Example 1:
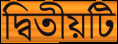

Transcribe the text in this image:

দ্বিতীয়টি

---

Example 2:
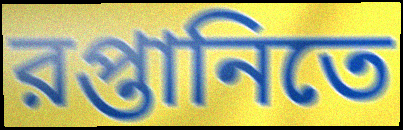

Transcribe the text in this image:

রপ্তানিতে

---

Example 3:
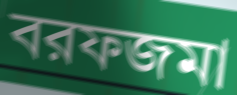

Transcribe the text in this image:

বরফজমা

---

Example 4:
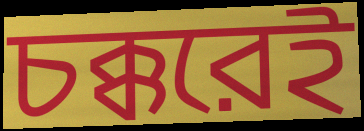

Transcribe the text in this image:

চক্করেই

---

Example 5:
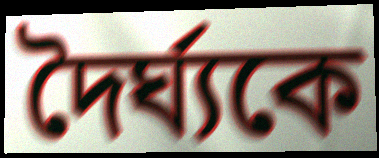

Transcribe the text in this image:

দৈর্ঘ্যকে